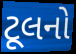
ટૂલનો